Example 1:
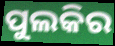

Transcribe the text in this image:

ପୁଲକିର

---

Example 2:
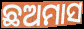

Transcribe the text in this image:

ଛଅମାସ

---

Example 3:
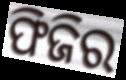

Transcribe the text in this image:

ଫିଜିର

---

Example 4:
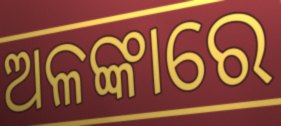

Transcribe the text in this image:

ଅଳଙ୍କାରେ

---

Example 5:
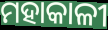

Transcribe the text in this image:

ମହାକାଳୀ